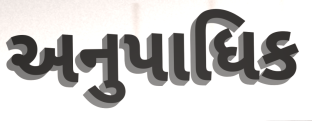
અનુપાધિક